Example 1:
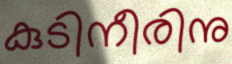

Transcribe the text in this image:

കുടിനീരിനു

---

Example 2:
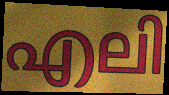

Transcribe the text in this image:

എലി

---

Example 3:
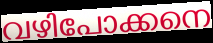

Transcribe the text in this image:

വഴിപോക്കനെ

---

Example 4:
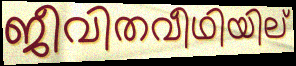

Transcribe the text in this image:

ജീവിതവീഥിയില്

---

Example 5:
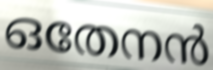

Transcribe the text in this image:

ഒതേനൻ